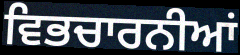
ਵਿਭਚਾਰਨੀਆਂ